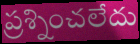
ప్రశ్నించలేదు